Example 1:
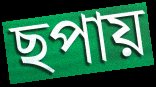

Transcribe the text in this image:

ছপায়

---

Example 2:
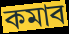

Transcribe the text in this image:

কমাব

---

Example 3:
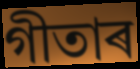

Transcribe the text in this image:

গীতাৰ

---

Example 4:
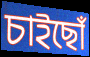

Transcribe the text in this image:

চাইছোঁ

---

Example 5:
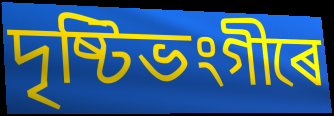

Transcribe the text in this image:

দৃষ্টিভংগীৰে